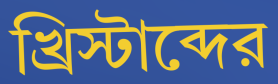
খ্রিস্টাব্দের